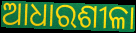
ଆଧାରଶୀଳା